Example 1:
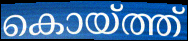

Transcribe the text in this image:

കൊയ്ത്ത്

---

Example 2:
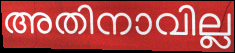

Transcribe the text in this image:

അതിനാവില്ല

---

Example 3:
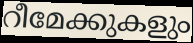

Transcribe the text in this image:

റീമേക്കുകളും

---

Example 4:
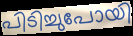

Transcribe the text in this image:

പിടിച്ചുപോയി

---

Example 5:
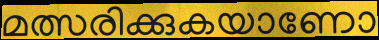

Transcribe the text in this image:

മത്സരിക്കുകയാണോ